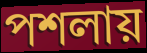
পশলায়